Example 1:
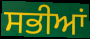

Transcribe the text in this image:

ਸਭੀਆਂ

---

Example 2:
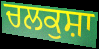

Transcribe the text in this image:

ਚਲਕੁਸ਼ਾ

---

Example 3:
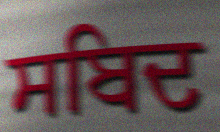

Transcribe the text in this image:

ਸਬਿਦ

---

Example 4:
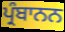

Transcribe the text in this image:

ਪ੍ਰੰਬਾਨਨ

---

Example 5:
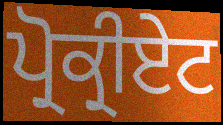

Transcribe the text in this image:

ਪ੍ਰੋਕ੍ਰੀਏਟ